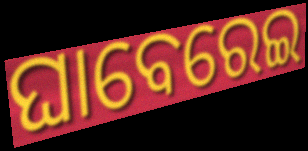
ଘାବେରେଇ